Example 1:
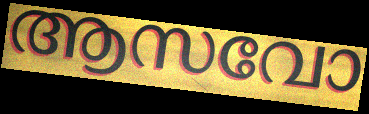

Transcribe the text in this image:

ആസവോ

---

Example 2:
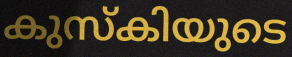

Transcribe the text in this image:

കുസ്കിയുടെ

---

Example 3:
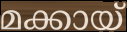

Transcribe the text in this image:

മക്കായ്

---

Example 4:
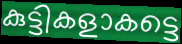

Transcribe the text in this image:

കുട്ടികളാകട്ടെ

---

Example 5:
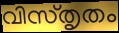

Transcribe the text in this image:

വിസ്തൃതം